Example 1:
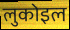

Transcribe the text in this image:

लुकोइल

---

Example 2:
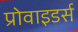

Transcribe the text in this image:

प्रोवाइडर्स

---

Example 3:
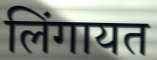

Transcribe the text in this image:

लिंगायत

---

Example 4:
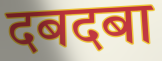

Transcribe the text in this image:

दबदबा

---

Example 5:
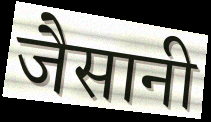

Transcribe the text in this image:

जैसानी